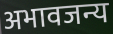
अभावजन्य